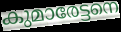
കുമാരേട്ടനെ